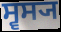
ਸ੍ਵਸ੍ਯ